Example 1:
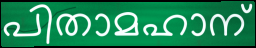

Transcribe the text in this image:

പിതാമഹാന്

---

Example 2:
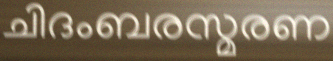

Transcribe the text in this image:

ചിദംബരസ്മരണ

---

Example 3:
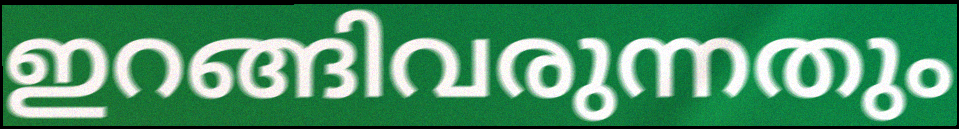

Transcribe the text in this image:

ഇറങ്ങിവരുന്നതും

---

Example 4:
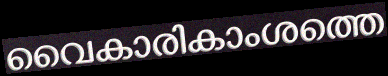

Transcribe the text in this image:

വൈകാരികാംശത്തെ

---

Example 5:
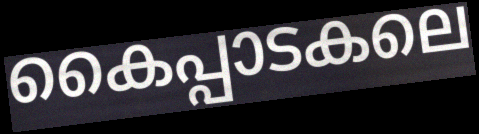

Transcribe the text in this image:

കൈപ്പാടകലെ